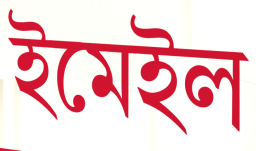
ইমেইল